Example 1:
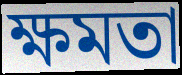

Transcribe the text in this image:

ক্ষমতা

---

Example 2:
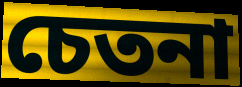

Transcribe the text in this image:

চেতনা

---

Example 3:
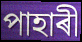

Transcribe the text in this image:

পাহাৰী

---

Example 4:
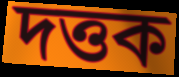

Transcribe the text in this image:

দত্তক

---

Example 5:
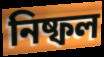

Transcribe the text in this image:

নিষ্ফল